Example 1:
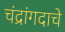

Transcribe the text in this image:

चंद्रांगदाचे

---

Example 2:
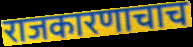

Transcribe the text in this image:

राजकारणाचाच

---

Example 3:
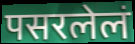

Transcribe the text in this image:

पसरलेलं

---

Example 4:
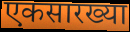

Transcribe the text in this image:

एकसारख्या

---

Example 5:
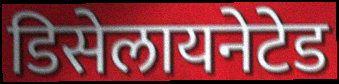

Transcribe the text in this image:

डिसेलायनेटेड